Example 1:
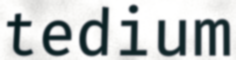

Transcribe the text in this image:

tedium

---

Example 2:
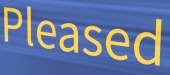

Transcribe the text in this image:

Pleased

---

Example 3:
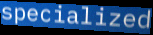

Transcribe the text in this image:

specialized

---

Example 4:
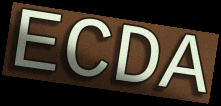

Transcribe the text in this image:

ECDA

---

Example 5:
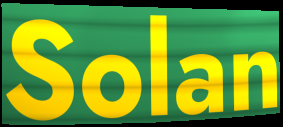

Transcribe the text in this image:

Solan